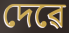
দেৱে